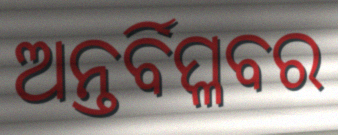
ଅନ୍ତର୍ବିପ୍ଳବର